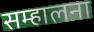
सम्हालना